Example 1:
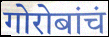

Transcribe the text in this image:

गोरोबांचं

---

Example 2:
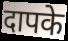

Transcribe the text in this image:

दापके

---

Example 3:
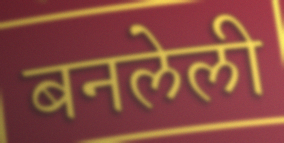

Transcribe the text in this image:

बनलेली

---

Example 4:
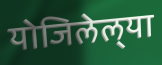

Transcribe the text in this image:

योजिलेल्या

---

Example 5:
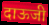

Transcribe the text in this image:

दाऊजी